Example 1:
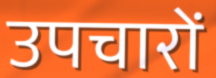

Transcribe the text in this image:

उपचारों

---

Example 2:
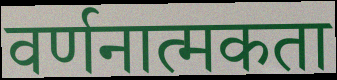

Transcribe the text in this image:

वर्णनात्मकता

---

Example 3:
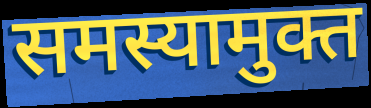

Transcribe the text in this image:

समस्यामुक्त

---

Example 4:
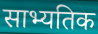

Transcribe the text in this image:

साभ्यतिक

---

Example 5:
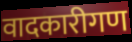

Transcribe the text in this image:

वादकारीगण